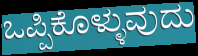
ಒಪ್ಪಿಕೊಳ್ಳುವುದು